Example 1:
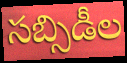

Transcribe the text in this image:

సబ్సిడీల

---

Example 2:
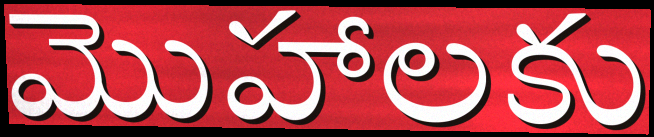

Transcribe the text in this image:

మొహాలకు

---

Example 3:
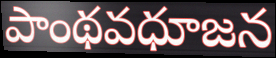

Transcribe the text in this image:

పాంథవధూజన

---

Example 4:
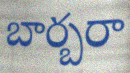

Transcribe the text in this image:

బార్బరా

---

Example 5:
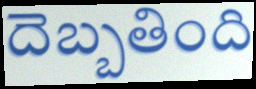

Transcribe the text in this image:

దెబ్బతింది